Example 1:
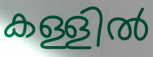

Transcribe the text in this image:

കള്ളിൽ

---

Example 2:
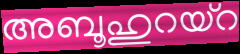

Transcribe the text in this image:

അബൂഹുറയ്റ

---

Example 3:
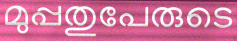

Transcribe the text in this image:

മുപ്പതുപേരുടെ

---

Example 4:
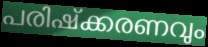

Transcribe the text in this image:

പരിഷ്ക്കരണവും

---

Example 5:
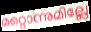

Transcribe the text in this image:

മറ്റൊന്നുമില്ലേ